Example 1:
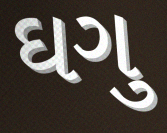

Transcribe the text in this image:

ઘગુ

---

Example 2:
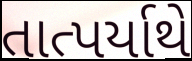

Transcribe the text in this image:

તાત્પર્યાથે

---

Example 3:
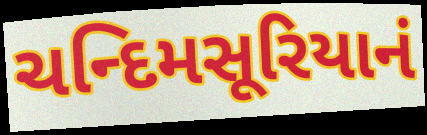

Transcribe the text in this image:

ચન્દિમસૂરિયાનં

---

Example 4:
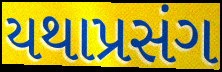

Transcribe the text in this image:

યથાપ્રસંગ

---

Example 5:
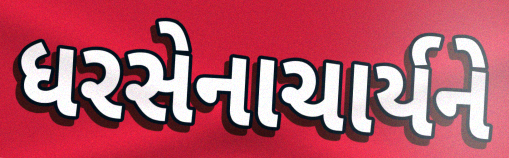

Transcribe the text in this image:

ધરસેનાચાર્યને